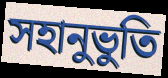
সহানুভুতি